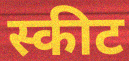
स्कीट